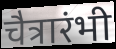
चैत्रारंभी